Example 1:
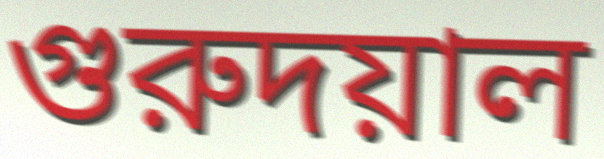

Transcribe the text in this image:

গুরুদয়াল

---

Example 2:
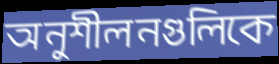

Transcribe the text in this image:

অনুশীলনগুলিকে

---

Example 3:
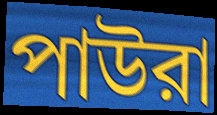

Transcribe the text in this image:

পাউরা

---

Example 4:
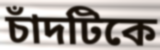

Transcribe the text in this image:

চাঁদটিকে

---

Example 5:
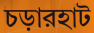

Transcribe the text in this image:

চড়ারহাট